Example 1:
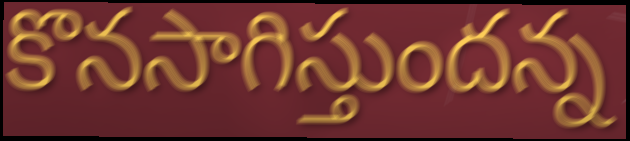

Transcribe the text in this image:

కొనసాగిస్తుందన్న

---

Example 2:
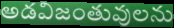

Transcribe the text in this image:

అడవిజంతువులను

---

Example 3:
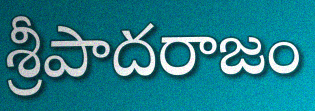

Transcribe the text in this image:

శ్రీపాదరాజం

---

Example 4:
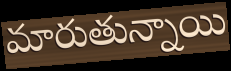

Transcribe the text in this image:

మారుతున్నాయి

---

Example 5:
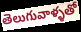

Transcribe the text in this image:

తెలుగువాళ్ళతో